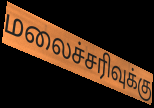
மலைச்சரிவுக்கு